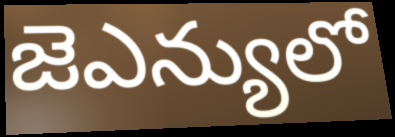
జెఎన్యులో